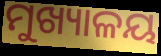
ମୁଖ୍ୟାଳୟ